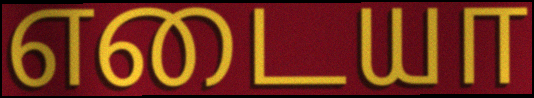
எடையா